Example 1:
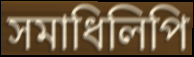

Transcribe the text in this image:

সমাধিলিপি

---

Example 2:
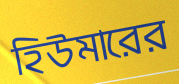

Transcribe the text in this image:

হিউমারের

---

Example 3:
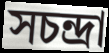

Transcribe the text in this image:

সচন্দ্রা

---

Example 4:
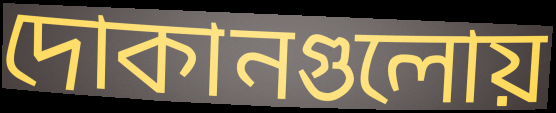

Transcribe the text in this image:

দোকানগুলোয়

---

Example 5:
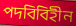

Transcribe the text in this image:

পদবিবিহীন